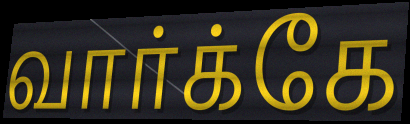
வார்க்கே